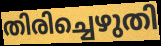
തിരിച്ചെഴുതി